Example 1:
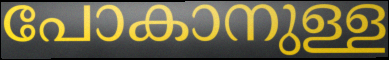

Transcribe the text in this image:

പോകാനുള്ള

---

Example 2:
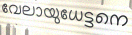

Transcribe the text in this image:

വേലായുധേട്ടനെ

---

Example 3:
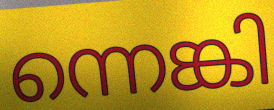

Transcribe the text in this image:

ന്നെങ്കി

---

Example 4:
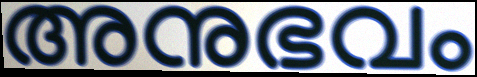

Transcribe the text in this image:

അനുഭവം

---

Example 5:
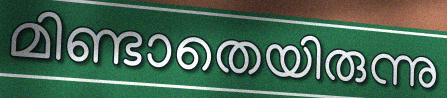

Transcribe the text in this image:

മിണ്ടാതെയിരുന്നു